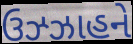
ઉઝ્ઝાહને